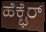
ಹೆಕ್ಟೆರ್